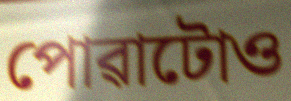
পোৱাটোও